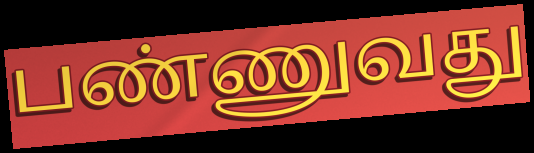
பண்ணுவது